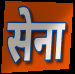
सेना